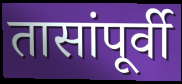
तासांपूर्वी